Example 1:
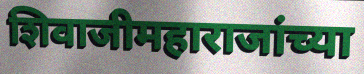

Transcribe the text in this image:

शिवाजीमहाराजांच्या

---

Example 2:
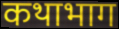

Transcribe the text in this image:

कथाभाग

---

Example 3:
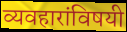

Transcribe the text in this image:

व्यवहारांविषयी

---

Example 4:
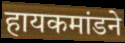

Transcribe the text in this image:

हायकमांडने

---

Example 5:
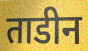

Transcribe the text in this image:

ताडीन